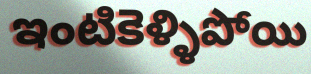
ఇంటికెళ్ళిపోయి